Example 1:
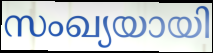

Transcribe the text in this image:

സംഖ്യയായി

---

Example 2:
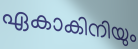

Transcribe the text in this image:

ഏകാകിനിയും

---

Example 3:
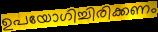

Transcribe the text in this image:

ഉപയോഗിച്ചിരിക്കണം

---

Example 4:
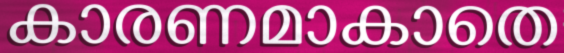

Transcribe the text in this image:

കാരണമാകാതെ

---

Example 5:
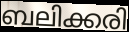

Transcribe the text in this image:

ബലിക്കരി